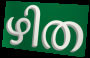
ഴിത